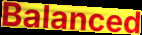
Balanced